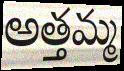
అత్తమ్మ